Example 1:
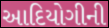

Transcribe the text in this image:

આદિયોગીની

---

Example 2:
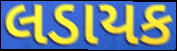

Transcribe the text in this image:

લડાયક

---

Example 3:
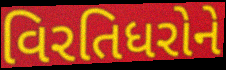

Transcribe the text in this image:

વિરતિધરોને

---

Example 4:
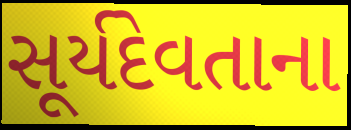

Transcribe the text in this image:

સૂર્યદેવતાના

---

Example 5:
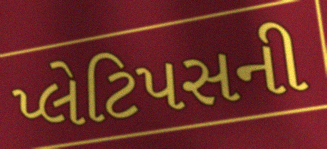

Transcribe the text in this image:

પ્લેટિપસની